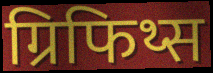
ग्रिफिथ्स